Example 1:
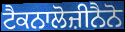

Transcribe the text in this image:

ਟੈਕਨਾਲੋਜ਼ੀਨੈਨੋ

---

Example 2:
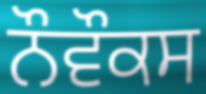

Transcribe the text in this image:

ਨੌਵੌਕਸ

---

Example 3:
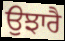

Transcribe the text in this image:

ਉਝਾਰੈ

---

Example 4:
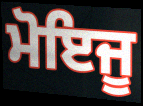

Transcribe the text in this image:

ਮੋਇਜੂ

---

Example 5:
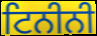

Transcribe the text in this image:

ਟਿਨੀਨੀ